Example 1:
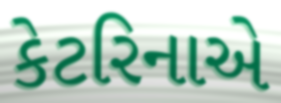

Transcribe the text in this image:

કેટરિનાએ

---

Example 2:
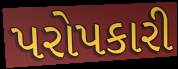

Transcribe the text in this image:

પરોપકારી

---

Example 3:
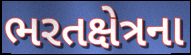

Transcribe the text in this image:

ભરતક્ષેત્રના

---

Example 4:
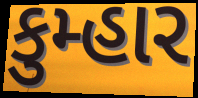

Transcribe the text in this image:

કુમ્હાર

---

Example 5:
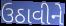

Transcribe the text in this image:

ઉઠાવીને